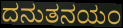
ದನುತನಯಂ